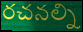
రచనల్ని